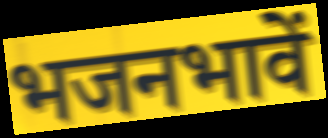
भजनभावें